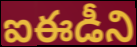
ఐఈడీని